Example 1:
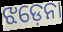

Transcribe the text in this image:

ଝଡ଼େନା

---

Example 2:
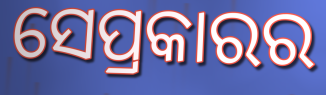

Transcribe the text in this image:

ସେପ୍ରକାରର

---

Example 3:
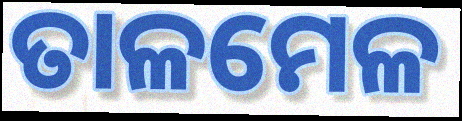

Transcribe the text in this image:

ତାଳମେଳ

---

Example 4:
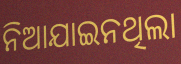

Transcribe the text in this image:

ନିଆଯାଇନଥିଲା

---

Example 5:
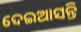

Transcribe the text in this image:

ଦେଇଆସନ୍ତି